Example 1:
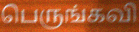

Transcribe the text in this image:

பெருங்கவி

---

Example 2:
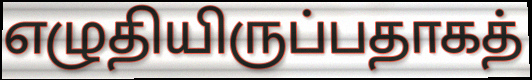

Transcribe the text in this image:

எழுதியிருப்பதாகத்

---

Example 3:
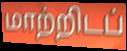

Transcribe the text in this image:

மாற்றிடப்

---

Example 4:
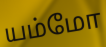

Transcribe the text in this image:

யம்மோ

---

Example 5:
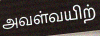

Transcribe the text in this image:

அவள்வயிற்